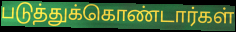
படுத்துக்கொண்டார்கள்